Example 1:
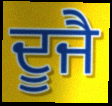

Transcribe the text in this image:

ਦੂਜੈ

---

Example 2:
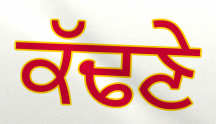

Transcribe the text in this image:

ਕੱਢਣੇ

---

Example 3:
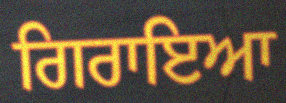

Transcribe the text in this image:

ਗਿਰਾਇਆ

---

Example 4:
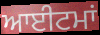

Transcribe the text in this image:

ਆਈਟਮਾਂ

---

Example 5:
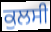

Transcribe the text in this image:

ਕੁਲਸੀ